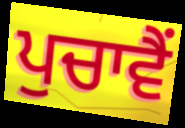
ਪੁਚਾਵੈਂ